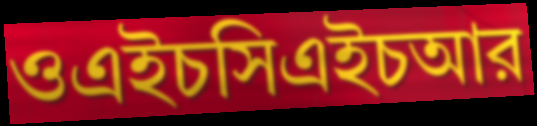
ওএইচসিএইচআর